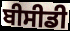
ਬੀਸੀਡੀ